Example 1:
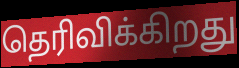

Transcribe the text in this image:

தெரிவிக்கிறது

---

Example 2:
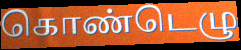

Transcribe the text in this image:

கொண்டெழு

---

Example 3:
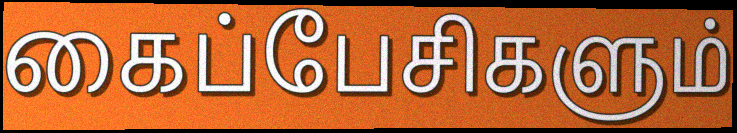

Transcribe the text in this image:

கைப்பேசிகளும்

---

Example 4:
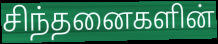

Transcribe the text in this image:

சிந்தனைகளின்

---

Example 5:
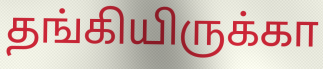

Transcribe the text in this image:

தங்கியிருக்கா